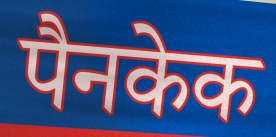
पैनकेक